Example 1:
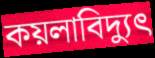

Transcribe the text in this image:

কয়লাবিদ্যুৎ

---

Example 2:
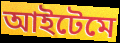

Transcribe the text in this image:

আইটেমে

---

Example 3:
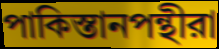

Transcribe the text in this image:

পাকিস্তানপন্থীরা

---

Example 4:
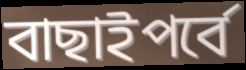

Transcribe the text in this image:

বাছাইপর্বে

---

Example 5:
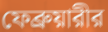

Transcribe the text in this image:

ফেব্রুয়ারীর